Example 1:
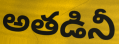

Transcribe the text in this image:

అతడినీ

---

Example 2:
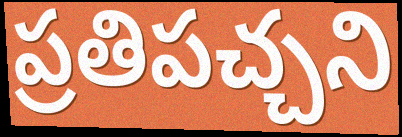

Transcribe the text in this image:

ప్రతిపచ్చని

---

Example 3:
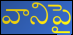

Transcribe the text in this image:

వానిపై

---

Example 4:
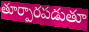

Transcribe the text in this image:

తూర్పారపడుతూ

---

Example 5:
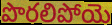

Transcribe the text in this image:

పొరలిపోయె